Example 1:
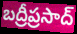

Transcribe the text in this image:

బద్రీప్రసాద్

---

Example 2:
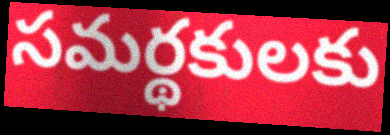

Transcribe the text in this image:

సమర్థకులకు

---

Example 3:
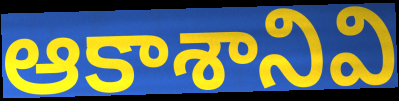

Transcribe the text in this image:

ఆకాశానివి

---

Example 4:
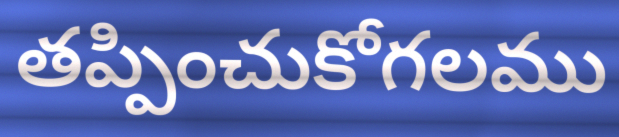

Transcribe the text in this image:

తప్పించుకోగలము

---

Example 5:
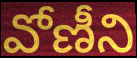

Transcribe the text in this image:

వోణీని